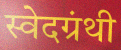
स्वेदग्रंथी